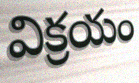
విక్రయం